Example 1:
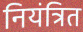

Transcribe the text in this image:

नियंत्रित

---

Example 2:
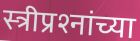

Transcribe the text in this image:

स्त्रीप्रश्नांच्या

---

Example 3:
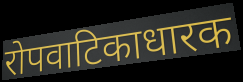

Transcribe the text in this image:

रोपवाटिकाधारक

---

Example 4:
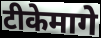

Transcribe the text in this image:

टीकेमागे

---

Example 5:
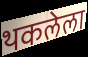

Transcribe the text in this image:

थकलेला